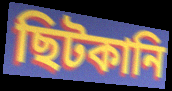
ছিটকানি